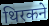
थिरकने